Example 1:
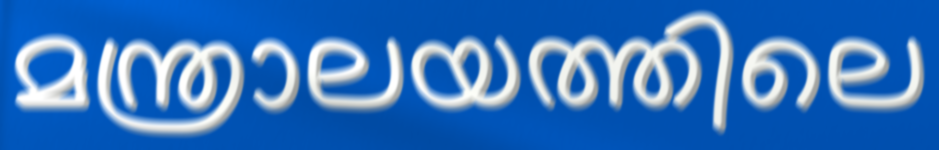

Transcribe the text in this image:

മന്ത്രാലയത്തിലെ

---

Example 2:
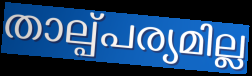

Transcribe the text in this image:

താല്പ്പര്യമില്ല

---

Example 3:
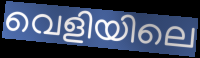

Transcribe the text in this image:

വെളിയിലെ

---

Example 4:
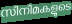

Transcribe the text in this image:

സിനിമകളുടെ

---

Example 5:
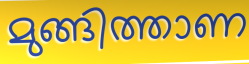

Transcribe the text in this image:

മുങ്ങിത്താണ